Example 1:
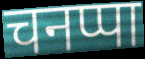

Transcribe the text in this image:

चनप्पा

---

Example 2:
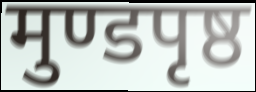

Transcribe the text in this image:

मुण्डपृष्ठ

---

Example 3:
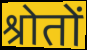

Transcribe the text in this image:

श्रोतों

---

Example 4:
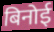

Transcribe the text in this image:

बिनोई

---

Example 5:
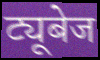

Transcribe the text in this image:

ट्यूबेज